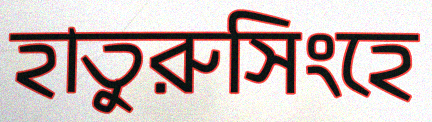
হাতুরুসিংহে